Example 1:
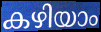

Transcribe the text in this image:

കഴിയാം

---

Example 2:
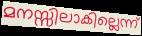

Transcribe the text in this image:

മനസ്സിലാകില്ലെന്ന്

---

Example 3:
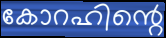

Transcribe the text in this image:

കോറഹിന്റെ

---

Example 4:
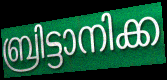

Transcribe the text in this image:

ബ്രിട്ടാനിക്ക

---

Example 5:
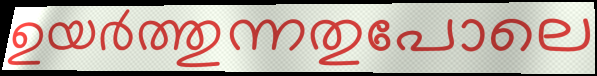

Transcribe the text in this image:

ഉയർത്തുന്നതുപോലെ